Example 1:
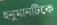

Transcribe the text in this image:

হনুমানটিকে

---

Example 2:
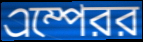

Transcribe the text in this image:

এম্পেরর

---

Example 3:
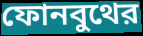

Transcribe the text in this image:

ফোনবুথের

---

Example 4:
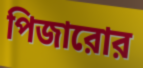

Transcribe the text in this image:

পিজারোর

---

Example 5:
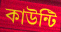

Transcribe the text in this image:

কাউন্টি